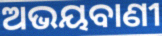
ଅଭୟବାଣୀ